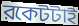
রকেটটাই